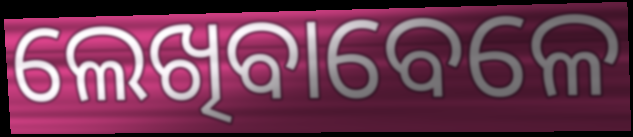
ଲେଖିବାବେଳେ